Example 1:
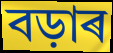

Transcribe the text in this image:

বড়াৰ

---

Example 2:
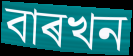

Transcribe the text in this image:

বাৰখন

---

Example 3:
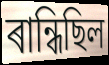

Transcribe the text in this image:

ৰান্ধিছিল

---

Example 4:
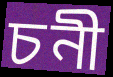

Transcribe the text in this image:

চনী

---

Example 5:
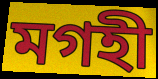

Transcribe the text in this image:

মগহী